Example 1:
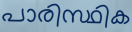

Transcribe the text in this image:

പാരിസ്ഥിക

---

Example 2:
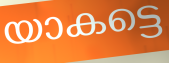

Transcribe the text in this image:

യാകട്ടെ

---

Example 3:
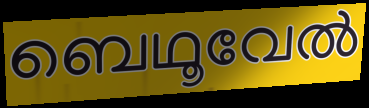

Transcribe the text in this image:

ബെഥൂവേൽ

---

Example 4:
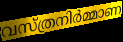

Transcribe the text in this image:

വസ്ത്രനിർമ്മാണ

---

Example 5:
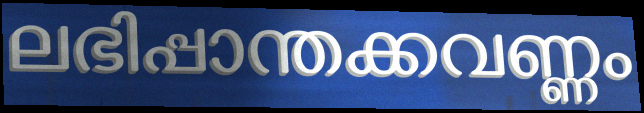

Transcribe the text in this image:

ലഭിപ്പാന്തക്കവണ്ണം